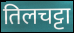
तिलचट्टा